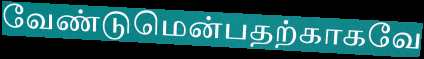
வேண்டுமென்பதற்காகவே